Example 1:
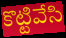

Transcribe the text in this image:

కొట్టివేసి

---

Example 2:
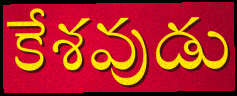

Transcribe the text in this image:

కేశవుడు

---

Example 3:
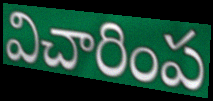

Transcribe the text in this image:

విచారింప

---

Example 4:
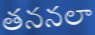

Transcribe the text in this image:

తననలా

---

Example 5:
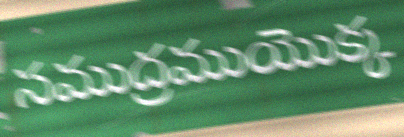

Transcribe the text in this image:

సముద్రముయొక్క